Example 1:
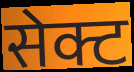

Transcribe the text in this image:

सेक्ट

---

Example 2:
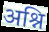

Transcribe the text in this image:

अश्नि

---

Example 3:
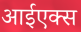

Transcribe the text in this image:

आईएक्स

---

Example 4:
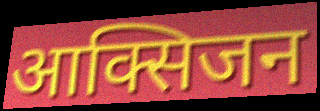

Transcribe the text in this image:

आक्सिजन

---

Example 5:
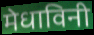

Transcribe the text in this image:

मेधाविनी